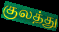
குலத்து